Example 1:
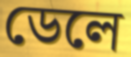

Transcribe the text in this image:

ডেলে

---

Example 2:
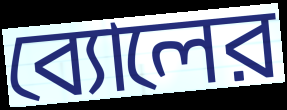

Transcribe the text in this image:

ব্যোলের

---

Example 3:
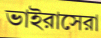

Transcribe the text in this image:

ভাইরাসেরা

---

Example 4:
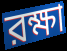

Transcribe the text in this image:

রক্ষা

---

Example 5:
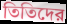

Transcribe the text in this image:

তিতিদের